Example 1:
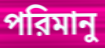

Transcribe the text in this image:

পরিমানু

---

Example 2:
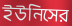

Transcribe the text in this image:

ইউনিসের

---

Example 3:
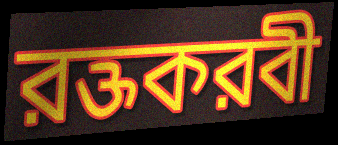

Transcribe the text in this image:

রক্তকরবী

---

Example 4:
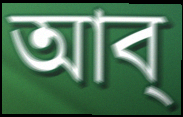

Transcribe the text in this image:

আব্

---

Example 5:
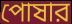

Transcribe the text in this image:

পোষার